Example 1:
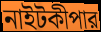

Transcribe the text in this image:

নাইটকীপার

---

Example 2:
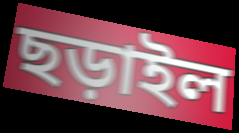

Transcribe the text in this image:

ছড়াইল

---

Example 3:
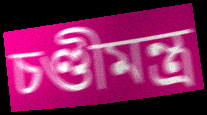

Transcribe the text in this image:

চণ্ডীমন্ত্র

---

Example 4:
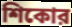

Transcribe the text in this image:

শিকোর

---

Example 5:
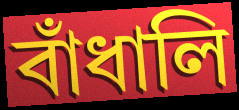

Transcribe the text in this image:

বাঁধালি